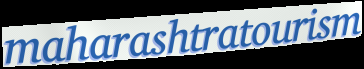
maharashtratourism